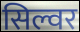
सिल्‍वर